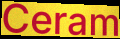
Ceram